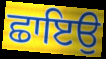
ਛਾਇਉ